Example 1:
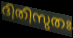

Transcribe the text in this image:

ദിതിസുതഃ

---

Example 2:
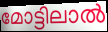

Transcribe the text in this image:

മോട്ടിലാൽ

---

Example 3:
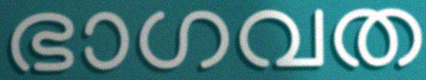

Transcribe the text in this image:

ഭാഗവത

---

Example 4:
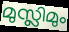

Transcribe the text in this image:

മുസ്ലിമും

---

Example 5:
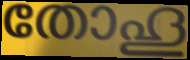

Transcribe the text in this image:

തോഹൂ